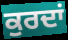
ਕੁਰਦਾਂ